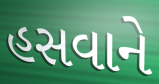
હસવાને